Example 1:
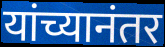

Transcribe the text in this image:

यांच्यानंतर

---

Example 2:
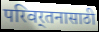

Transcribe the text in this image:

परिवर्तनासाठी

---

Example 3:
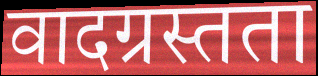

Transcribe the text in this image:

वादग्रस्तता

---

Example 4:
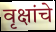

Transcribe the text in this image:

वृक्षांचे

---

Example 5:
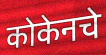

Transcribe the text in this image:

कोकेनचे